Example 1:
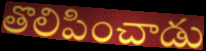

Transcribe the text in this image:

తొలిపించాడు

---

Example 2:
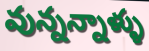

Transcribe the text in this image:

వున్నన్నాళ్ళు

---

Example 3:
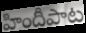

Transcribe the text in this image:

హిందీపాట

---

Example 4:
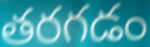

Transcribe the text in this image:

తరగడం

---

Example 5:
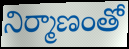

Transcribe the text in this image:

నిర్మాణంతో